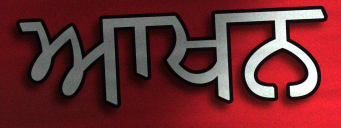
ਆਖਨ